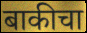
बाकीचा